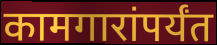
कामगारांपर्यंत